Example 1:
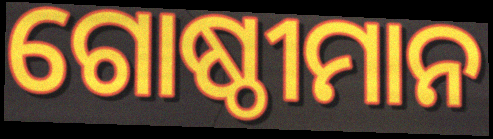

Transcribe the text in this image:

ଗୋଷ୍ଠୀମାନ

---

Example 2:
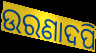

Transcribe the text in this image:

ଉରଣାଦପି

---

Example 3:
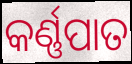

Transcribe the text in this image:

କର୍ଣ୍ଣପାତ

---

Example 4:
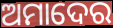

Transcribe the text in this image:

ଅମାଦେର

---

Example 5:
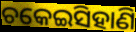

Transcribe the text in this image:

ଚକେଇସିହାଣି